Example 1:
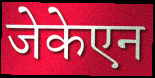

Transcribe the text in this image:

जेकेएन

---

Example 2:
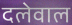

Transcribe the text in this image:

दलेवाल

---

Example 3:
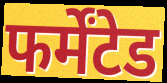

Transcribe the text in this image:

फर्मेंटेड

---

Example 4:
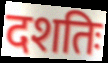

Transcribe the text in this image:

दशतिः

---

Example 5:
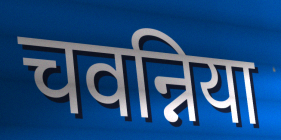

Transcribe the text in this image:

चवन्निया